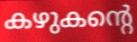
കഴുകന്റെ